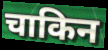
चाकिन